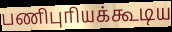
பணிபுரியக்கூடிய